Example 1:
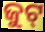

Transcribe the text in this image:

ଜୁଟ୍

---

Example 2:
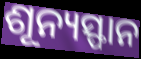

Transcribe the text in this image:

ଶୂନ୍ୟସ୍ଫାନ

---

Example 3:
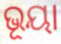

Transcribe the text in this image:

ଭୂୟା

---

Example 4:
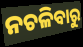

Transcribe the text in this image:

ନଚଳିବାରୁ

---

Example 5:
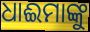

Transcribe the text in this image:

ଧାଈମାଙ୍କୁ